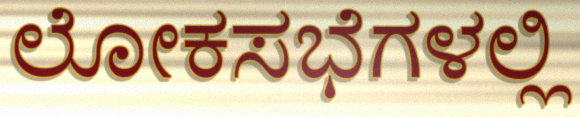
ಲೋಕಸಭೆಗಳಲ್ಲಿ